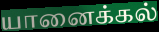
யானைக்கல்